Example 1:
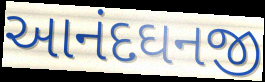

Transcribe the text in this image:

આનંદઘનજી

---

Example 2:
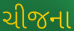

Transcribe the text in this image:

ચીજના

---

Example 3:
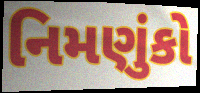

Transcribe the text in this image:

નિમણુંકો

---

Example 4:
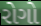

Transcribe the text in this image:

રોગો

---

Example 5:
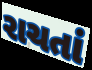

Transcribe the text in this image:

રાચતાં